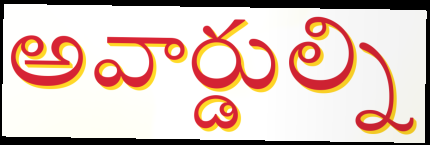
అవార్డుల్ని